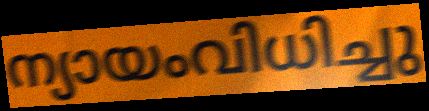
ന്യായംവിധിച്ചു